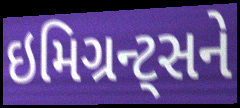
ઇમિગ્રન્ટ્સને